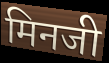
मिनजी